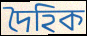
দৈহিক